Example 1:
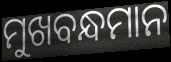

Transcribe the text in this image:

ମୁଖବନ୍ଧମାନ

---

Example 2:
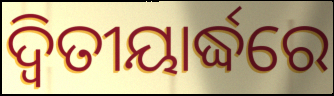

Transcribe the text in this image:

ଦ୍ଵିତୀୟାର୍ଦ୍ଧରେ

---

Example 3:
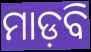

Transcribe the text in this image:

ମାଡ଼ବି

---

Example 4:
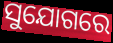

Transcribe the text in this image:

ସୁଯୋଗରେ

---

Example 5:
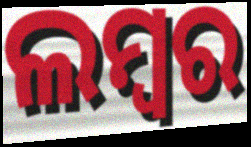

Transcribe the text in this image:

ଲମ୍ବର